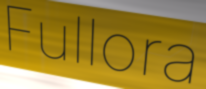
Fullora